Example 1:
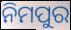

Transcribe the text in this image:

ନିମପୁର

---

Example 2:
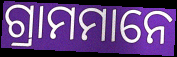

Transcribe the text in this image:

ଗ୍ରାମମାନେ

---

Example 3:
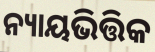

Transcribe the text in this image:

ନ୍ୟାୟଭିତ୍ତିକ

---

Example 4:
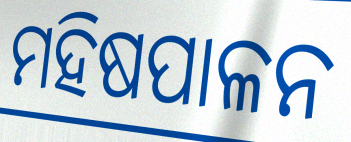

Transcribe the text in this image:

ମହିଷପାଳନ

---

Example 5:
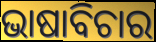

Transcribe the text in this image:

ଭାଷାବିଚାର